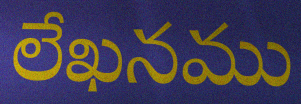
లేఖనము